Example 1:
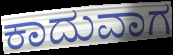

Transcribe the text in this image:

ಕಾದುವಾಗ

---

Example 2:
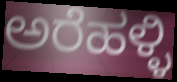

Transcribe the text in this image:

ಅರೆಹಳ್ಳಿ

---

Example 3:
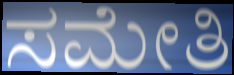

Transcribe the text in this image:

ಸಮೇತಿ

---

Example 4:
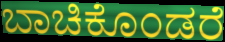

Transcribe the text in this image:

ಬಾಚಿಕೊಂಡರೆ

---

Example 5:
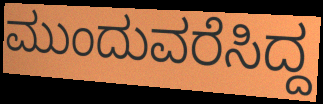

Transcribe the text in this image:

ಮುಂದುವರೆಸಿದ್ದ